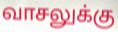
வாசலுக்கு